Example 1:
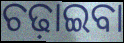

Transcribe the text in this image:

ଚଢ଼ାଇବା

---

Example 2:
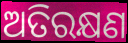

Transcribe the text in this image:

ଅତିରକ୍ଷଣ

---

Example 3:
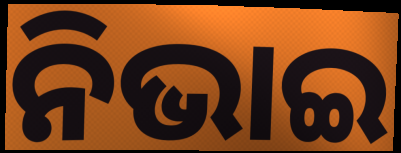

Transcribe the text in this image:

ନିଭାଇ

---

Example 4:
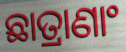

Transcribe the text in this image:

ଛାତ୍ରାଣାଂ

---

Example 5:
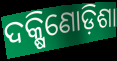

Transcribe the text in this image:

ଦକ୍ଷିଣୋଡ଼ିଶା